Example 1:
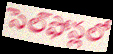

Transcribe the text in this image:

సెల్‌ఫోన్లలో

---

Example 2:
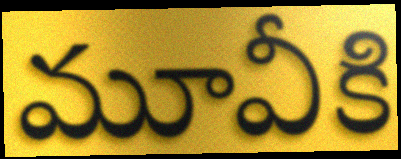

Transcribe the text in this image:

మూవీకి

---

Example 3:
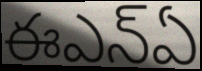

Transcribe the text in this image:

ఈఎన్ఏ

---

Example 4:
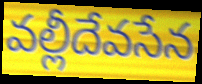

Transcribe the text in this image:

వల్లీదేవసేన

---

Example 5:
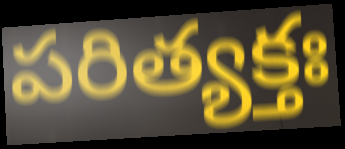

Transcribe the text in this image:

పరిత్యక్తః